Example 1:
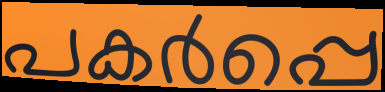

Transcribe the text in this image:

പകർപ്പെ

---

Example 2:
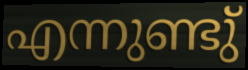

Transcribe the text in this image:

എന്നുണ്ടു്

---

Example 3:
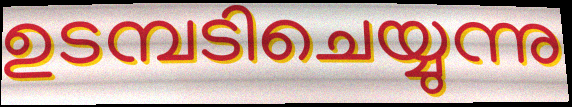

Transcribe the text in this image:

ഉടമ്പടിചെയ്യുന്നു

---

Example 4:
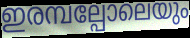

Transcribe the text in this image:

ഇരമ്പല്പോലെയും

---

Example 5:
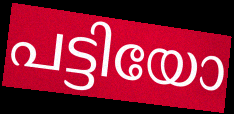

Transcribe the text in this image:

പട്ടിയോ